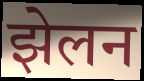
झेलन